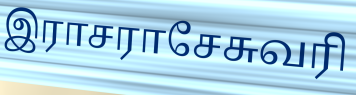
இராசராசேசுவரி